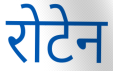
रोटेन